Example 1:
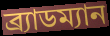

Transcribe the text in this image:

ব্র্যাডম্যান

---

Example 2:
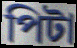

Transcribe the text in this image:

পিটা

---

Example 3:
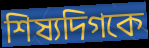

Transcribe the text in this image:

শিষ্যদিগকে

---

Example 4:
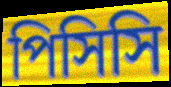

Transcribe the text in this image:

পিসিসি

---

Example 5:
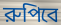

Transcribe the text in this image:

রুপিবে